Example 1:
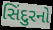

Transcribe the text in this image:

સિંદુરનો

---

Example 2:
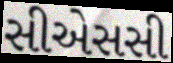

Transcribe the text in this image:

સીએસસી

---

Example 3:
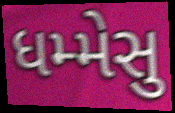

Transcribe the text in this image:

ધમ્મેસુ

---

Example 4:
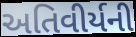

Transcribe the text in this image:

અતિવીર્યની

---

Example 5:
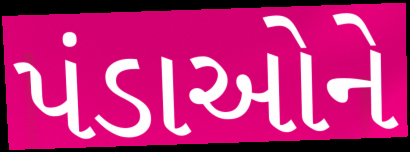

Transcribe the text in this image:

પંડાઓને